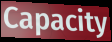
Capacity